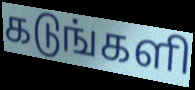
கடுங்களி